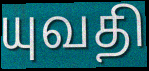
யுவதி